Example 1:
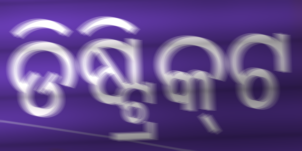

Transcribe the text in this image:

ଡିଷ୍ଟ୍ରିକ୍‌ଟ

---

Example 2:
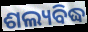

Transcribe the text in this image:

ଶଲ୍ୟବିଦ୍ଧ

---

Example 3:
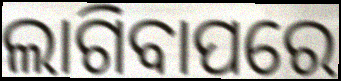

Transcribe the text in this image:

ଲାଗିବାପରେ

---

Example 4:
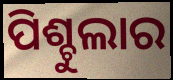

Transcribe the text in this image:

ପିଶ୍ଚୁଲାର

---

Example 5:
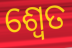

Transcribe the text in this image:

ଶ୍ଵେତ